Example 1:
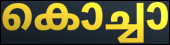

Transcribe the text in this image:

കൊച്ചാ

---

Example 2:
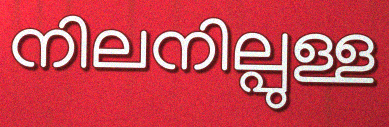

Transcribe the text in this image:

നിലനില്പുള്ള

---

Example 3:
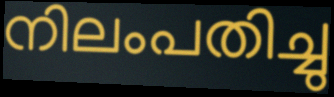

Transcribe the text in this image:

നിലംപതിച്ചു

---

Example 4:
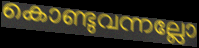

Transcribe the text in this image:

കൊണ്ടുവന്നല്ലോ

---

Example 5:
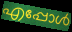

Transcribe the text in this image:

എപ്പോൾ